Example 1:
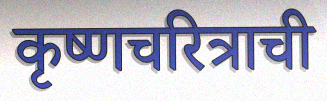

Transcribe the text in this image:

कृष्णचरित्राची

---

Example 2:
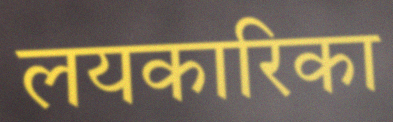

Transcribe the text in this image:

लयकारिका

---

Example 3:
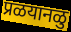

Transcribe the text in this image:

प्रळयानळु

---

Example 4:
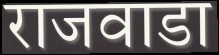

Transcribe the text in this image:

राजवाडा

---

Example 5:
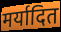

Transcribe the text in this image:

मर्यादित